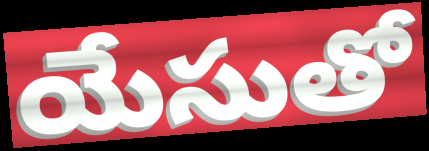
యేసుతో